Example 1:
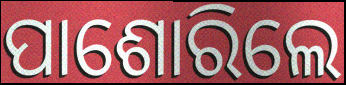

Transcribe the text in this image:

ପାଶୋରିଲେ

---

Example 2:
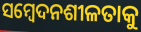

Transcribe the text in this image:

ସମ୍ବେଦନଶୀଳତାକୁ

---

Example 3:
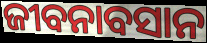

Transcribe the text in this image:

ଜୀବନାବସାନ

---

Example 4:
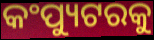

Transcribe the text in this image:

କଂପ୍ୟୁଟରକୁ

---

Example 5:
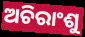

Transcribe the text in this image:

ଅଚିରାଂଶୁ